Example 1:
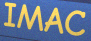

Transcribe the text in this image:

IMAC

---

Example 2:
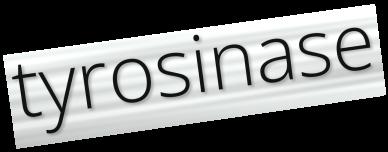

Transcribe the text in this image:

tyrosinase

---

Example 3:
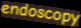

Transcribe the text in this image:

endoscopy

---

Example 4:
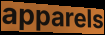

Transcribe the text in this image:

apparels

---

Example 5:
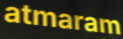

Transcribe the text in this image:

atmaram